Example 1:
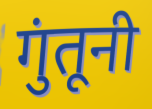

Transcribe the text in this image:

गुंतूनी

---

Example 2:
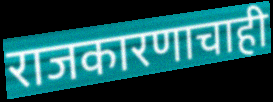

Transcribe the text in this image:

राजकारणाचाही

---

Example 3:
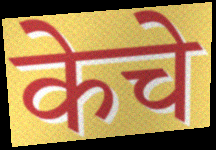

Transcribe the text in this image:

केचे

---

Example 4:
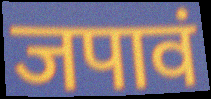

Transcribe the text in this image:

जपावं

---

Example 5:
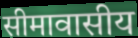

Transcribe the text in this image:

सीमावासीय